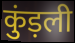
कुंड़ली